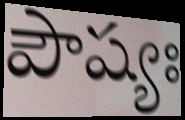
పౌష్యః